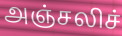
அஞ்சலிச்